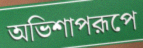
অভিশাপরূপে